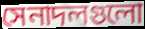
সেনাদলগুলো